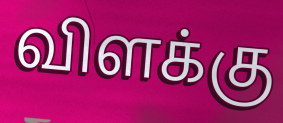
விளக்கு